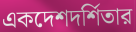
একদেশদর্শিতার